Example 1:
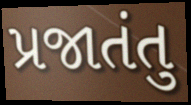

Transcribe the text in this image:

પ્રજાતંતુ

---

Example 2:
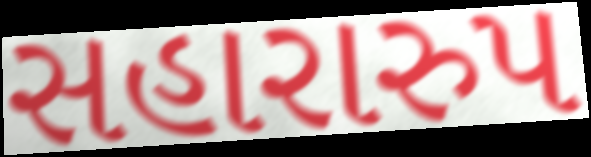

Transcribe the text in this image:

સહારારુપ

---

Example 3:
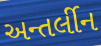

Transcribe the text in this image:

અન્તર્લીન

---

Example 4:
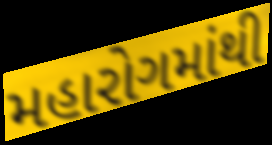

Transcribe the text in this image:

મહારોગમાંથી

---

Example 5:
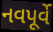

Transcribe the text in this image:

નવપૂર્વે